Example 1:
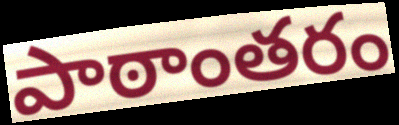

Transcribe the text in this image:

పాఠాంతరం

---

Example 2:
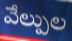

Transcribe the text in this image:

వేల్పుల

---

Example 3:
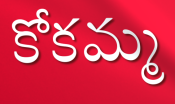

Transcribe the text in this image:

కోకమ్మ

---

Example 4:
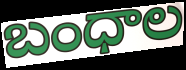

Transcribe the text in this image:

బంధాల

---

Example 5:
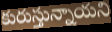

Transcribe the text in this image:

కురుస్తున్నాయని